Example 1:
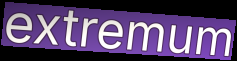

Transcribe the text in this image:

extremum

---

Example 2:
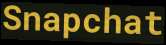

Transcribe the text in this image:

Snapchat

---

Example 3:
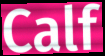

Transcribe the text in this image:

Calf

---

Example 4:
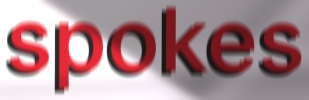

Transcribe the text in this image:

spokes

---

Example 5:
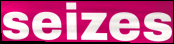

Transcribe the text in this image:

seizes